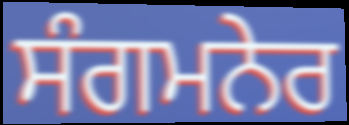
ਸੰਗਮਨੇਰ